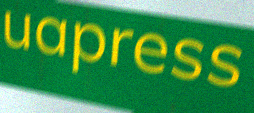
uapress